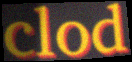
clod